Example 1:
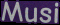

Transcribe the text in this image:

Musi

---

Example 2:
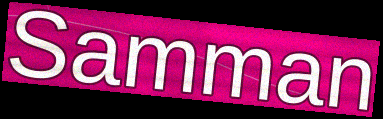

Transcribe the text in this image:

Samman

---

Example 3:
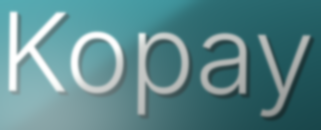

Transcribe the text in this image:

Kopay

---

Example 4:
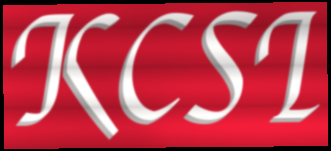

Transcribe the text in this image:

KCSI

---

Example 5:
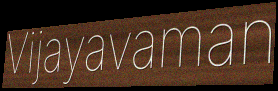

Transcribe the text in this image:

Vijayavaman